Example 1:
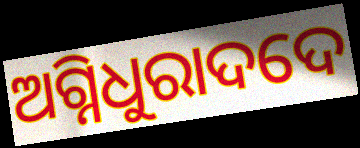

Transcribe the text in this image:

ଅଗ୍ନିଧୁରାଦଦେ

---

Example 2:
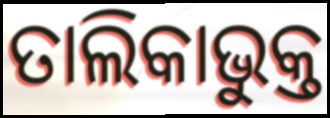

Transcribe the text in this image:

ତାଲିକାଭୁକ୍ତ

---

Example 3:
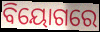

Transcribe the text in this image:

ବିୟୋଗରେ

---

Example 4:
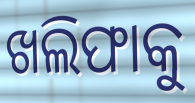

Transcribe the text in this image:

ଖଲିଫାକୁ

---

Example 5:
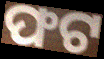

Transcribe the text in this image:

ଫଟ